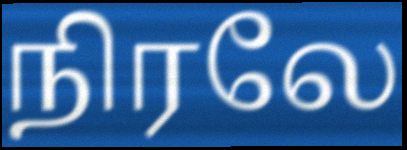
நிரலே